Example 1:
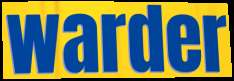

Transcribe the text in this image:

warder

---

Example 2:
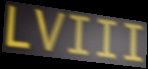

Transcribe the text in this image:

LVIII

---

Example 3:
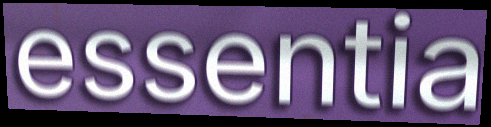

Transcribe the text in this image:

essentia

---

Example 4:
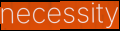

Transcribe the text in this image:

necessity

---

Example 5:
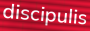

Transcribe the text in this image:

discipulis